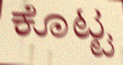
ಕೊಟ್ಟ